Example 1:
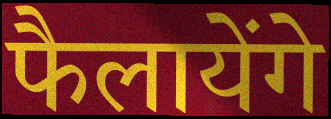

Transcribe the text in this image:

फैलायेंगे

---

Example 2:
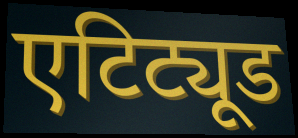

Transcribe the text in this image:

एटिट्यूड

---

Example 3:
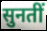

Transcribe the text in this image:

सुनतीं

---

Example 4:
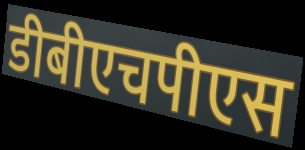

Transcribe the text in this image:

डीबीएचपीएस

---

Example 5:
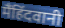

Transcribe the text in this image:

मैंहिंदवानी